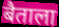
बैताला